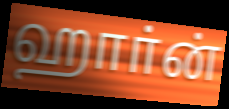
ஹார்ன்